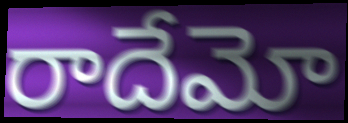
రాదేమో